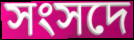
সংসদে